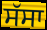
ਸੱਸਾ